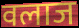
वलाज